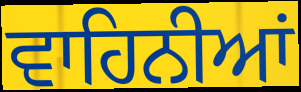
ਵਾਹਿਨੀਆਂ